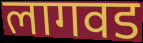
लागवड